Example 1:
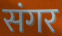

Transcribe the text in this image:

संगर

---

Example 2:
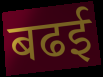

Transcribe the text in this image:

बढई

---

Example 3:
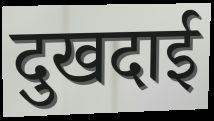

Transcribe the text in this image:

दुखदाई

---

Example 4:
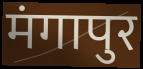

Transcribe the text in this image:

मंगापुर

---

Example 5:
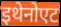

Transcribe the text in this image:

इथेनोएट